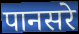
पानसरे